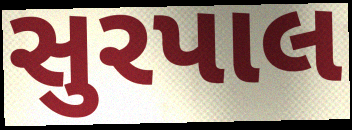
સુરપાલ